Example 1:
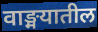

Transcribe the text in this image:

वाङ्मयातील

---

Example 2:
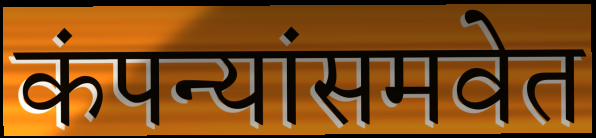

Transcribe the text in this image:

कंपन्यांसमवेत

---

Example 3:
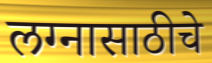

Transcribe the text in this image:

लग्नासाठीचे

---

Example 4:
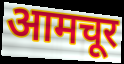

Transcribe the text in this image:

आमचूर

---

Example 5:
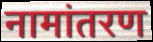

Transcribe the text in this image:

नामांतरण